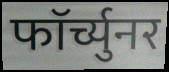
फॉर्च्युनर